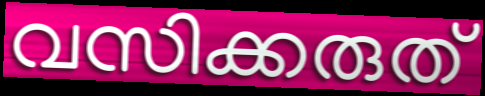
വസിക്കരുത്